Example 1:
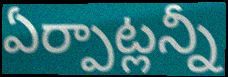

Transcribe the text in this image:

ఏర్పాట్లన్నీ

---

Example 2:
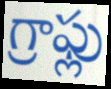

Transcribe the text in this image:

గ్రాఫ్లు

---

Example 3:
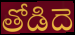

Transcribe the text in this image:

తోడిదె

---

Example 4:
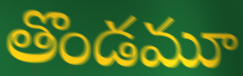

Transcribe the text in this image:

తొండమూ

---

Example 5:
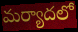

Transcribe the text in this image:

మర్యాదలో